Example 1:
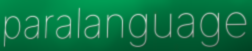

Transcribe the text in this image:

paralanguage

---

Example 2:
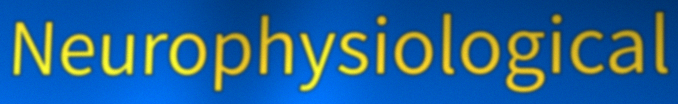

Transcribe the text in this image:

Neurophysiological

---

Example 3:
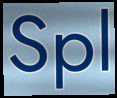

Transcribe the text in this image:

Spl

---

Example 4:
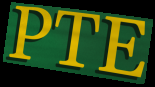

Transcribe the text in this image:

PTE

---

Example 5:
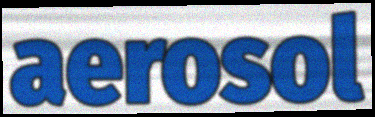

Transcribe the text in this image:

aerosol